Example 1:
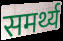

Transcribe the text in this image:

समर्थ्य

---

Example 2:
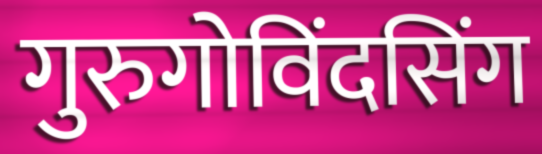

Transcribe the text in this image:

गुरुगोविंदसिंग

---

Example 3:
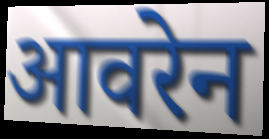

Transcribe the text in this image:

आवरेन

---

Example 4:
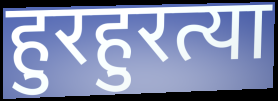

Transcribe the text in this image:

हुरहुरत्या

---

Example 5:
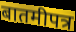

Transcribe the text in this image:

बातमीपत्र